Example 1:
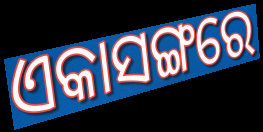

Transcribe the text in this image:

ଏକାସଙ୍ଗରେ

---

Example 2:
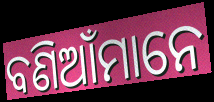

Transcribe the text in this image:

ବଣିଆଁମାନେ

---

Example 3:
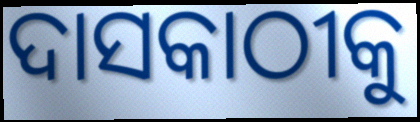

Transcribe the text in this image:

ଦାସକାଠୀକୁ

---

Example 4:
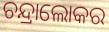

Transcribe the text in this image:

ଚନ୍ଦ୍ରାଲୋକର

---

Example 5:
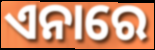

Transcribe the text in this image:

ଏନାରେ